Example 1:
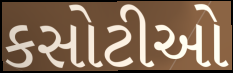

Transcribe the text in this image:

કસોટીઓ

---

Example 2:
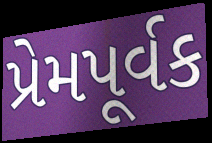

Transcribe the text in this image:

પ્રેમપૂર્વક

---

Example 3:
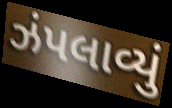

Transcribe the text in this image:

ઝંપલાવ્યું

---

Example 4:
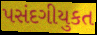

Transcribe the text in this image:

પસંદગીયુકત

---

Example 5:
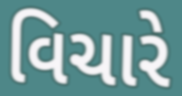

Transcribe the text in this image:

વિચારે